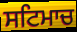
ਸਟਿਮਾਚ